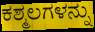
ಕಶ್ಮಲಗಳನ್ನು